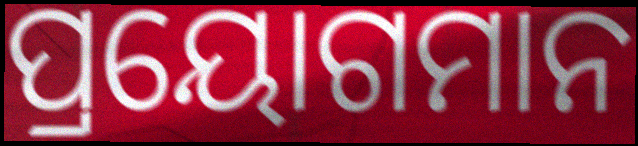
ପ୍ରୟୋଗମାନ